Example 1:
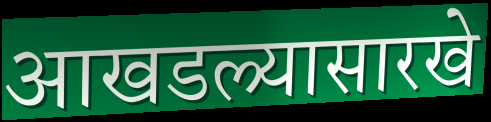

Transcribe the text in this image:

आखडल्यासारखे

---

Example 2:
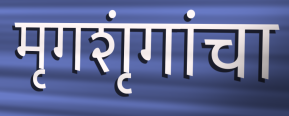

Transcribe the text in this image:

मृगशृंगांचा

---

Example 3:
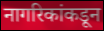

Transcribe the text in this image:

नागरिकांकडून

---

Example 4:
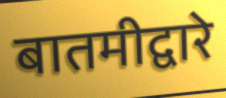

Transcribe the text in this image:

बातमीद्वारे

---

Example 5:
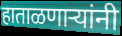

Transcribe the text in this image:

हाताळणाऱ्यांनी